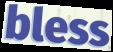
bless